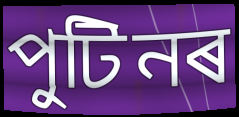
পুটিনৰ